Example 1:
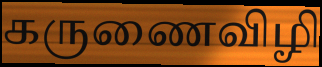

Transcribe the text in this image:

கருணைவிழி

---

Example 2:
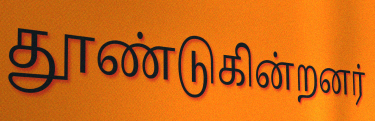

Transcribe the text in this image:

தூண்டுகின்றனர்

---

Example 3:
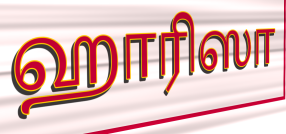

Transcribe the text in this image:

ஹாரிஸா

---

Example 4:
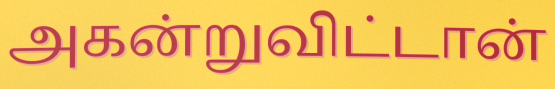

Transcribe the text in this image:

அகன்றுவிட்டான்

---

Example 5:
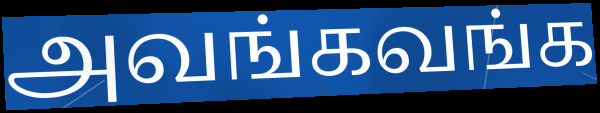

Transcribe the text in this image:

அவங்கவங்க